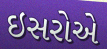
ઇસરોએ